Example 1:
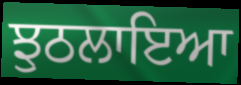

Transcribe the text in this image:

ਝੁਠਲਾਇਆ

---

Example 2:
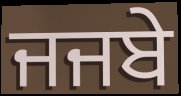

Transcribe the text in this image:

ਜਜਬੇ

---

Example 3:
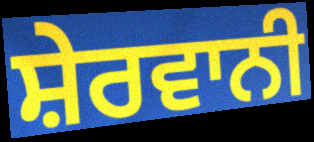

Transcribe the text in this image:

ਸ਼ੇਰਵਾਨੀ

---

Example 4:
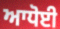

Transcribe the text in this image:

ਆਧੋਈ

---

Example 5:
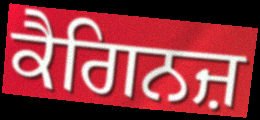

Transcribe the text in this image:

ਕੈਗਿਨਜ਼